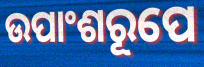
ଉପାଂଶରୂପେ